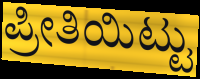
ಪ್ರೀತಿಯಿಟ್ಟು